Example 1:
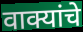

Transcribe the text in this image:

वाक्यांचे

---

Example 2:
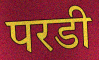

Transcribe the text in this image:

परडी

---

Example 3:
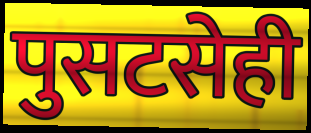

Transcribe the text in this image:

पुसटसेही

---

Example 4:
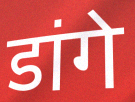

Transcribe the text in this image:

डांगे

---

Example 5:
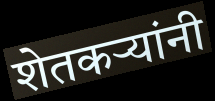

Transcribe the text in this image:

शेतकऱ्यांनी